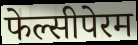
फेल्सीपेरम